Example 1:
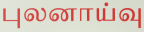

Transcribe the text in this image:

புலனாய்வு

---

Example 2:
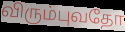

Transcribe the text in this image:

விரும்புவதோ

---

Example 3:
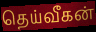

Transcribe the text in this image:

தெய்வீகன்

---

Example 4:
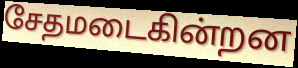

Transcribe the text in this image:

சேதமடைகின்றன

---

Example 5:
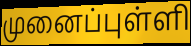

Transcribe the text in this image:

முனைப்புள்ளி